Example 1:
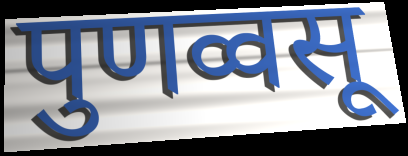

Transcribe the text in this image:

पुणव्वसू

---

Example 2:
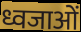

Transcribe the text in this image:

ध्वजाओं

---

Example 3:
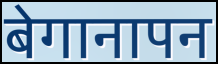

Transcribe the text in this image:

बेगानापन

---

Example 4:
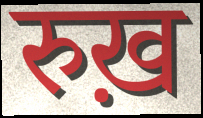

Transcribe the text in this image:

रुख़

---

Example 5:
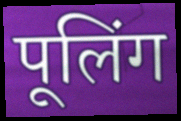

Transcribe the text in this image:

पूलिंग